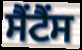
ਸੈਂਟੈਂਸ